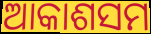
ଆକାଶସମ